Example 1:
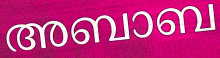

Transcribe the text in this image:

അബാബ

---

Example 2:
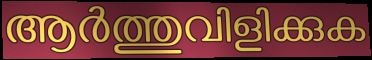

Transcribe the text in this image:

ആർത്തുവിളിക്കുക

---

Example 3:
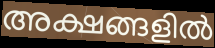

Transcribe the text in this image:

അക്ഷങ്ങളിൽ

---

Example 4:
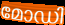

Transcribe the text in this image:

മോഡി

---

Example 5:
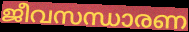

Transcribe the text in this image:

ജീവസന്ധാരണ